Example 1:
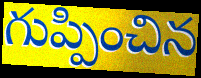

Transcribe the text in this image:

గుప్పించిన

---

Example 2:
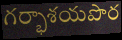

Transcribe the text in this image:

గర్భాశయపొర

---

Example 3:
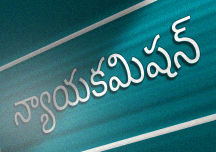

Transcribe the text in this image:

న్యాయకమిషన్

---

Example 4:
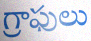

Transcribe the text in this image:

గ్రాఫులు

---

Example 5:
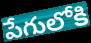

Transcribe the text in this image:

పేగులోకి